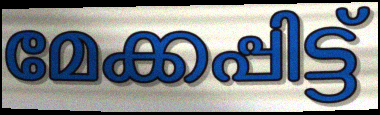
മേക്കപ്പിട്ട്